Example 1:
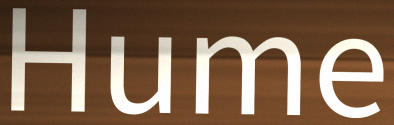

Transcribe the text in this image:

Hume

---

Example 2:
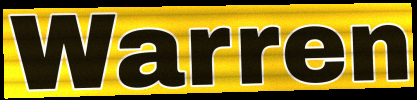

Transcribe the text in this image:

Warren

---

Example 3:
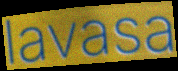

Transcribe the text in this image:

lavasa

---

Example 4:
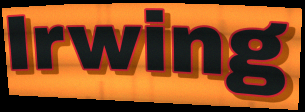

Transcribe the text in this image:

Irwing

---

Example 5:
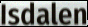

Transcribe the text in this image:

Isdalen